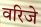
वरिजे